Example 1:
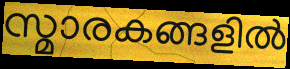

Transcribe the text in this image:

സ്മാരകങ്ങളിൽ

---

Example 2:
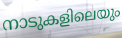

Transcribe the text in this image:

നാടുകളിലെയും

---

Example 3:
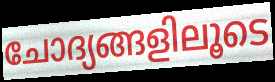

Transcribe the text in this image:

ചോദ്യങ്ങളിലൂടെ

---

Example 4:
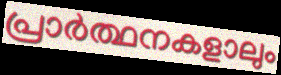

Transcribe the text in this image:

പ്രാർത്ഥനകളാലും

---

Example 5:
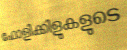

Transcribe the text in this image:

ഫോളിക്കിളുകളുടെ